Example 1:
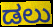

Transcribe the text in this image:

ಡಲು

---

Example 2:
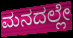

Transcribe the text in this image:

ಮನದಲ್ಲೇ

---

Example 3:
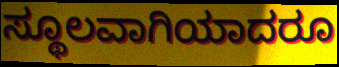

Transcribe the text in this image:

ಸ್ಥೂಲವಾಗಿಯಾದರೂ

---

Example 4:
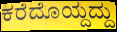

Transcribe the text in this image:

ಕರೆದೊಯ್ದದ್ದು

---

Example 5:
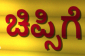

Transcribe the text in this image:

ಚಿಪ್ಸಿಗೆ